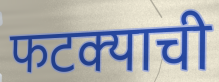
फटक्याची